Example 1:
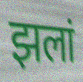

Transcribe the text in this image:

झलां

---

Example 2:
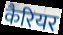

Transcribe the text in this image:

कैरियर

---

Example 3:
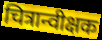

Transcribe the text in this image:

चित्रान्वीक्षक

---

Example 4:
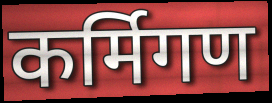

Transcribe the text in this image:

कर्मिगण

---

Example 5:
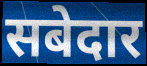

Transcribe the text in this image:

सबेदार